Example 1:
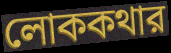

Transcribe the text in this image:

লোককথার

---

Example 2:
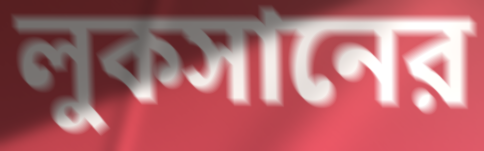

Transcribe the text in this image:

লুকসানের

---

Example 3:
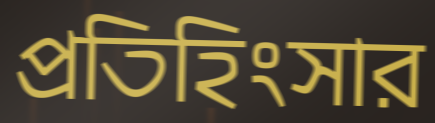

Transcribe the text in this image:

প্রতিহিংসার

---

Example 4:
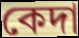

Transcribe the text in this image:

কেদা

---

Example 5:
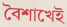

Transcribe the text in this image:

বৈশাখেই